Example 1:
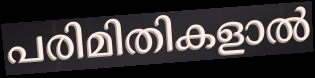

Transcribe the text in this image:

പരിമിതികളാൽ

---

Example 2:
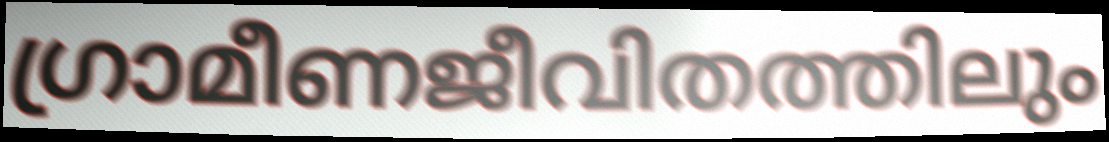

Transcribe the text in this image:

ഗ്രാമീണജീവിതത്തിലും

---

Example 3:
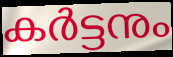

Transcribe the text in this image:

കർട്ടനും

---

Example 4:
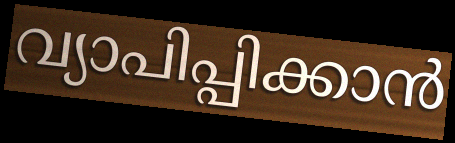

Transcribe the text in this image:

വ്യാപിപ്പിക്കാൻ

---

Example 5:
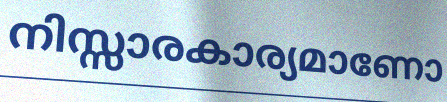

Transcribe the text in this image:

നിസ്സാരകാര്യമാണോ